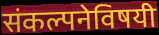
संकल्पनेविषयी